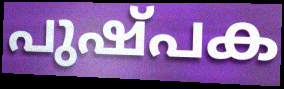
പുഷ്പക